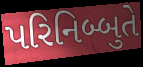
પરિનિબ્બુતે